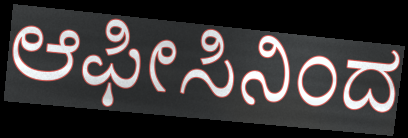
ಆಫೀಸಿನಿಂದ